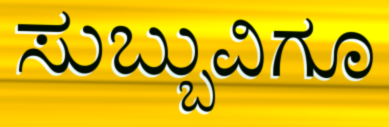
ಸುಬ್ಬುವಿಗೂ